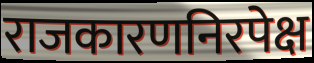
राजकारणनिरपेक्ष